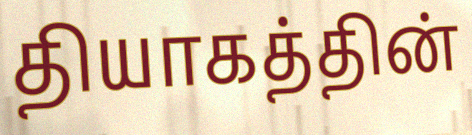
தியாகத்தின்